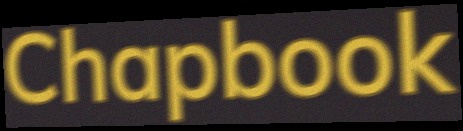
Chapbook